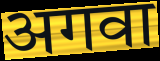
अगवा